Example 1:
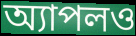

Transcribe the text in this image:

অ্যাপলও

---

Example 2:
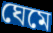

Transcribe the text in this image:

ঘেমে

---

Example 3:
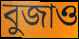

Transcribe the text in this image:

বুজাও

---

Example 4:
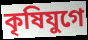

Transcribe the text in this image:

কৃষিযুগে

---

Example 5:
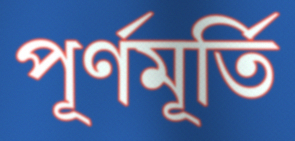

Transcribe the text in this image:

পূর্ণমূর্তি